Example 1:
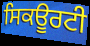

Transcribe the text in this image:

ਸਿਕਊਰਟੀ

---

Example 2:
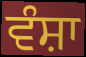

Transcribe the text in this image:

ਵੰਸ਼ਾ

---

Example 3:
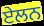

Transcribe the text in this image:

ਏਲਨ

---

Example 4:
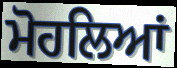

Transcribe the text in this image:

ਮੋਹਲਿਆਂ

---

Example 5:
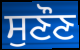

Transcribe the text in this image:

ਸੁਣੌਣ